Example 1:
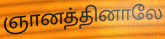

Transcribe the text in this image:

ஞானத்தினாலே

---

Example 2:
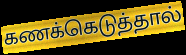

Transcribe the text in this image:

கணக்கெடுத்தால்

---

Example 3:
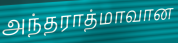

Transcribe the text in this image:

அந்தராத்மாவான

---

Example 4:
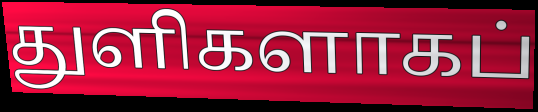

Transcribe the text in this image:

துளிகளாகப்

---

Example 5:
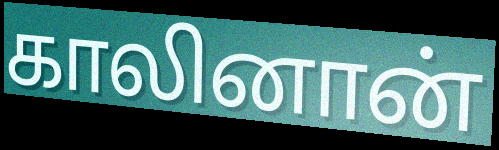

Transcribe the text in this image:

காலினான்